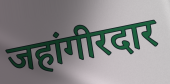
जहांगीरदार